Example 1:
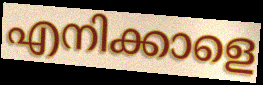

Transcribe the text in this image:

എനിക്കാളെ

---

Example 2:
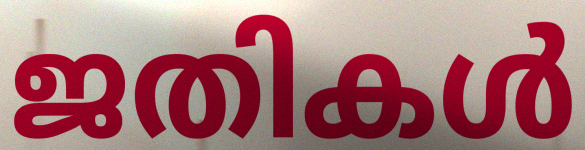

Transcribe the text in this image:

ജതികൾ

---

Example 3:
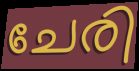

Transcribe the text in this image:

ചേരി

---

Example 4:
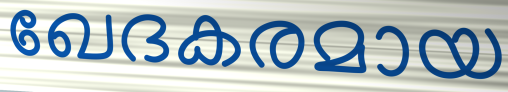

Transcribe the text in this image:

ഖേദകരമായ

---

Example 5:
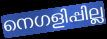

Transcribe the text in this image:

നെഗളിപ്പില്ല